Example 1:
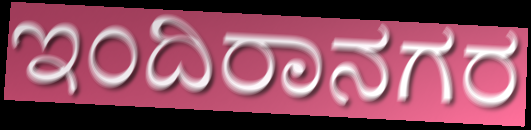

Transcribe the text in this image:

ಇಂದಿರಾನಗರ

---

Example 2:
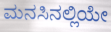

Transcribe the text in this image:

ಮನಸಿನಲ್ಲಿಯೇ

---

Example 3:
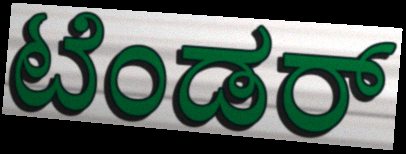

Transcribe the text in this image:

ಟೆಂಡರ್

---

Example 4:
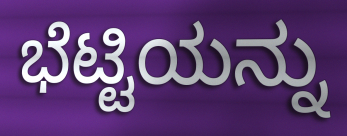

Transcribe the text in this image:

ಭೆಟ್ಟಿಯನ್ನು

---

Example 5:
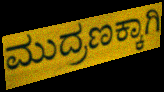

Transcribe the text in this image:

ಮುದ್ರಣಕ್ಕಾಗಿ